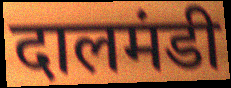
दालमंडी